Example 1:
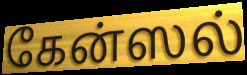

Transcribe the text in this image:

கேன்ஸல்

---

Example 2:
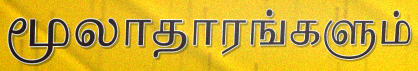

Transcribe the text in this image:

மூலாதாரங்களும்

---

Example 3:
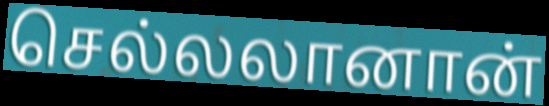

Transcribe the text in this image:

செல்லலானான்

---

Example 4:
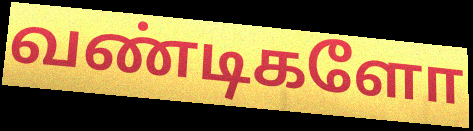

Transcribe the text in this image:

வண்டிகளோ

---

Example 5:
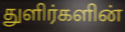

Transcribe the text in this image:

துளிர்களின்